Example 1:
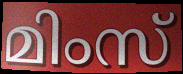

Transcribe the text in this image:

മിംസ്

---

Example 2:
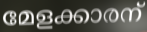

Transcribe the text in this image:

മേളക്കാരന്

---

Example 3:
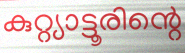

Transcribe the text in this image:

കുറ്റ്യാട്ടൂരിന്റെ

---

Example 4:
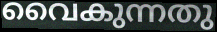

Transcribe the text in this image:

വൈകുന്നതു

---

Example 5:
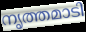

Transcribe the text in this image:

നൃത്തമാടി